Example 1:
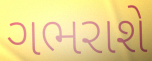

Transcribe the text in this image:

ગભરાશે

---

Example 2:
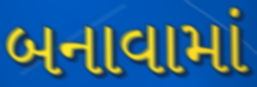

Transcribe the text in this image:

બનાવામાં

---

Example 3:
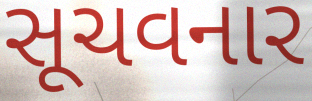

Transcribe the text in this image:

સૂચવનાર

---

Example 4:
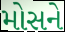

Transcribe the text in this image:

મોસને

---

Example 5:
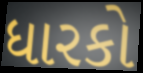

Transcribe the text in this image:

ધારકો